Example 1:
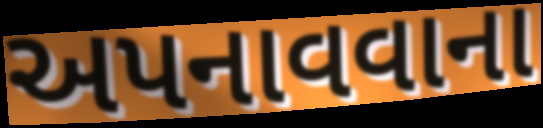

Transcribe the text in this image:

અપનાવવાના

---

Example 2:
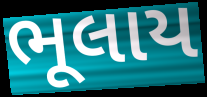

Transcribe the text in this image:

ભૂલાય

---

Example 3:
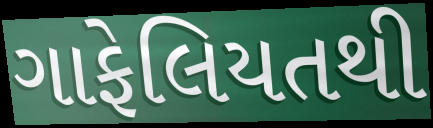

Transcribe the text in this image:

ગાફેલિયતથી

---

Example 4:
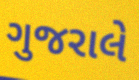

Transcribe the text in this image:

ગુજરાલે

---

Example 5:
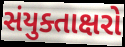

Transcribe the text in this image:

સંયુક્તાક્ષરો